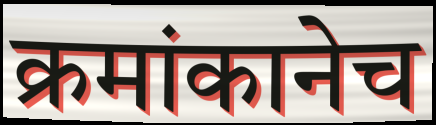
क्रमांकानेच